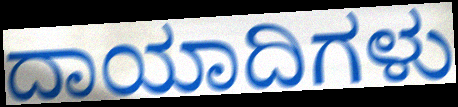
ದಾಯಾದಿಗಳು